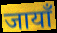
जायाँ